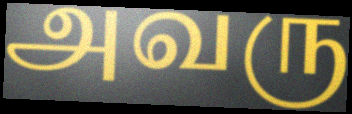
அவரு